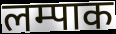
लम्पाक